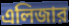
এলিজার